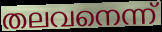
തലവനെന്ന്